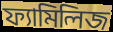
ফ্যামিলিজ